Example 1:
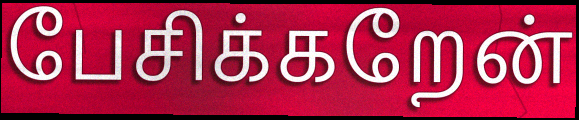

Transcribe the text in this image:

பேசிக்கறேன்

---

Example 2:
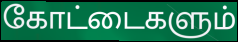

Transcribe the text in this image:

கோட்டைகளும்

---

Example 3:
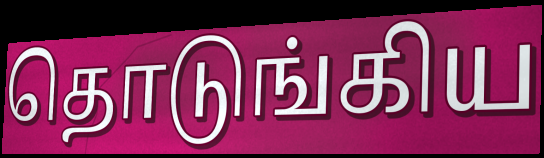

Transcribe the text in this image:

தொடுங்கிய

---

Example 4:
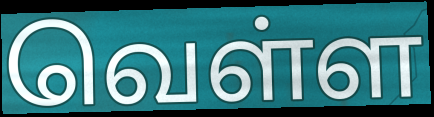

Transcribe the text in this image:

வெள்ள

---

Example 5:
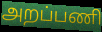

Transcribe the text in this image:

அறப்பணி